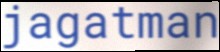
jagatman